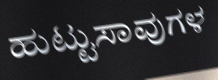
ಹುಟ್ಟುಸಾವುಗಳ